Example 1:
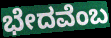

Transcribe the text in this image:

ಭೇದವೆಂಬ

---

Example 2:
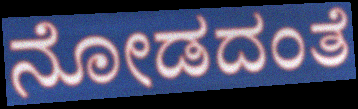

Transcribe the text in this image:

ನೋಡದಂತೆ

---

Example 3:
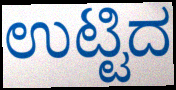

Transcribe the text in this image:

ಉಟ್ಟಿದ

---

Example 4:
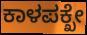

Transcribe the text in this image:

ಕಾಳಪಕ್ಖೇ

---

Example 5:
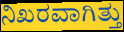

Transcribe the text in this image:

ನಿಖರವಾಗಿತ್ತು